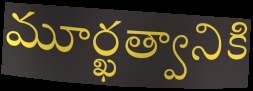
మూర్ఖత్వానికి